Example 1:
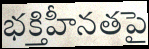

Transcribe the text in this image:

భక్తిహీనతపై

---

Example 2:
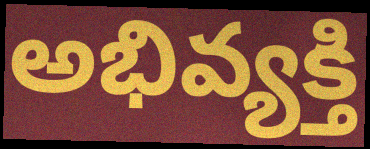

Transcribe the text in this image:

అభివ్యక్తి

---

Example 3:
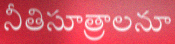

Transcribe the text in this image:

నీతిసూత్రాలనూ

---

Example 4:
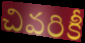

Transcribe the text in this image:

చివరికీ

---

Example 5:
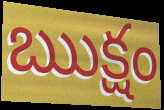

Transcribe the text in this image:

ఋక్షం